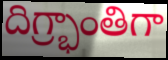
దిగ్ర్భాంతిగా